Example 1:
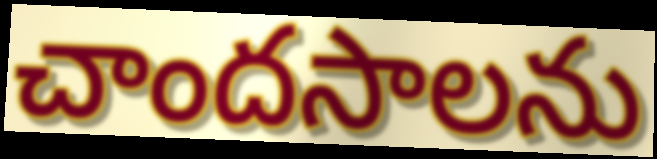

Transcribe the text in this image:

చాందసాలను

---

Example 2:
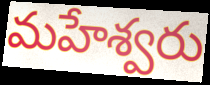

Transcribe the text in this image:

మహేశ్వరు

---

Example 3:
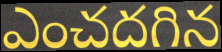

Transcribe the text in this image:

ఎంచదగిన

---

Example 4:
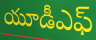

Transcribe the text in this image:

యూడీఎఫ్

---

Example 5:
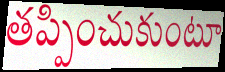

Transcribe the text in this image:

తప్పించుకుంటూ